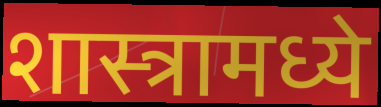
शास्त्रामध्ये